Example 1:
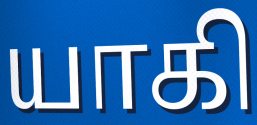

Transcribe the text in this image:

யாகி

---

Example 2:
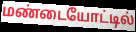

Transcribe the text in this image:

மண்டையோட்டில்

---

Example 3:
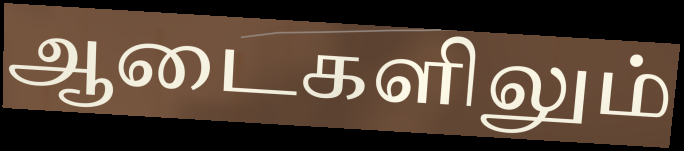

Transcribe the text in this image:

ஆடைகளிலும்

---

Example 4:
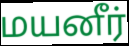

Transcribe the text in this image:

மயனீர்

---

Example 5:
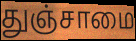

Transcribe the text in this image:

துஞ்சாமை